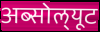
अब्सोल्यूट